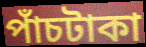
পাঁচটাকা